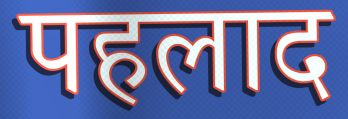
पहलाद